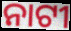
ନାଟୀ